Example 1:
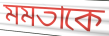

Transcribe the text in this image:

মমতাকে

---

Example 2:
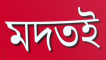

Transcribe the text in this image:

মদতই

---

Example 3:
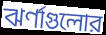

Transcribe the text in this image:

ঝর্ণাগুলোর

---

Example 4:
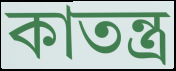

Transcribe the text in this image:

কাতন্ত্র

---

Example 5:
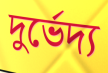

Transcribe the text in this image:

দুর্ভেদ্য